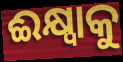
ଈକ୍ଷ୍ୱାକୁ